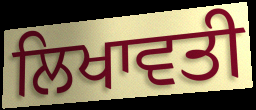
ਲਿਖਾਵਤੀ